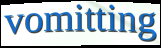
vomitting